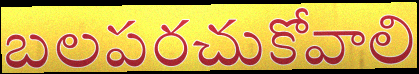
బలపరచుకోవాలి